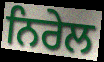
ਨਿਰੇਲ